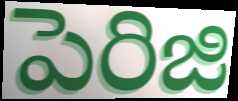
పెరిజి